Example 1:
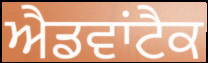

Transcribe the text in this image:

ਐਡਵਾਂਟੈਕ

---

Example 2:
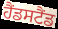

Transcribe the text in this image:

ਹੈਂਡਸਟੈਂਡ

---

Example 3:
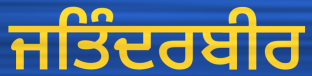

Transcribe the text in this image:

ਜਤਿੰਦਰਬੀਰ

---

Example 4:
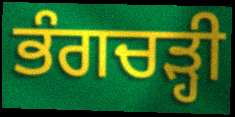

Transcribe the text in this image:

ਭੰਗਚੜ੍ਹੀ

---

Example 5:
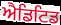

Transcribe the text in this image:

ਐਡਿਟਿਡ